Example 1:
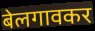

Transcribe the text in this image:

बेलगावकर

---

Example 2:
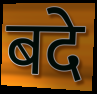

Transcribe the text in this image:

बदे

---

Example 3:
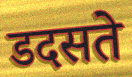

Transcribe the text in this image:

डदसते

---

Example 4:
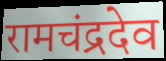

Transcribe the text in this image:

रामचंद्रदेव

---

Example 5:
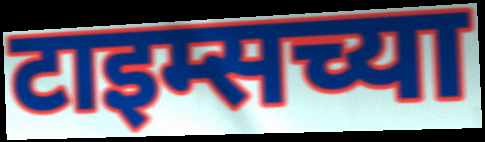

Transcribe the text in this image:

टाइम्सच्या